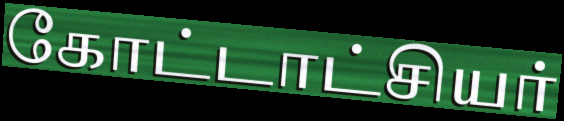
கோட்டாட்சியர்